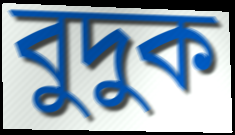
বুদুক